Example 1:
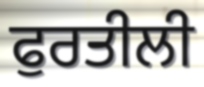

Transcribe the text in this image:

ਫੁਰਤੀਲੀ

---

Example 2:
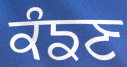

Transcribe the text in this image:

ਕੰਙਣ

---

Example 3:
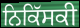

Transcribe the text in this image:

ਨਿਕਿੱਸਕੀ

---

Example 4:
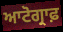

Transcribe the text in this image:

ਆਟੋਗ੍ਰਾਫ਼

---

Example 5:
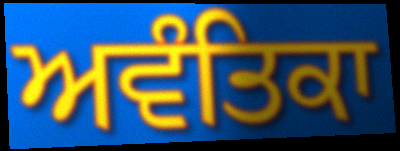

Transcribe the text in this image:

ਅਵੰਤਿਕਾ